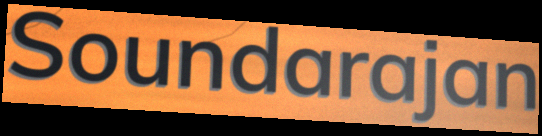
Soundarajan